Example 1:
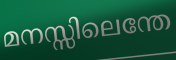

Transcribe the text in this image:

മനസ്സിലെന്തേ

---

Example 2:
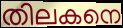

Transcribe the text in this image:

തിലകനെ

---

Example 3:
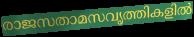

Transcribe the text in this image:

രാജസതാമസവൃത്തികളിൽ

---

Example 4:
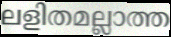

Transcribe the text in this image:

ലളിതമല്ലാത്ത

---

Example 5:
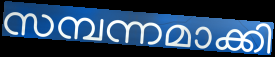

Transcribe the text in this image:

സമ്പന്നമാക്കി